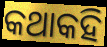
କଥାକହି